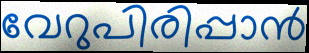
വേറുപിരിപ്പാൻ